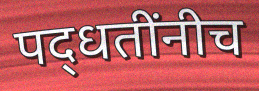
पद्धतींनीच